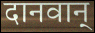
दानवान्